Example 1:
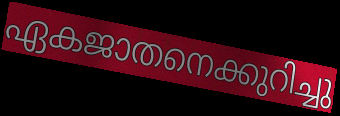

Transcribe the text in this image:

ഏകജാതനെക്കുറിച്ചു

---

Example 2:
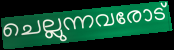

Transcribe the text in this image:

ചെല്ലുന്നവരോട്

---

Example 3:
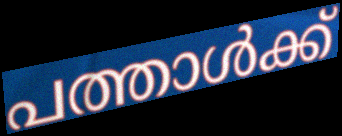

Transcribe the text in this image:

പത്താൾക്ക്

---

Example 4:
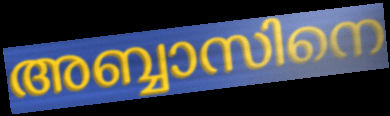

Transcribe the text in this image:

അബ്ബാസിനെ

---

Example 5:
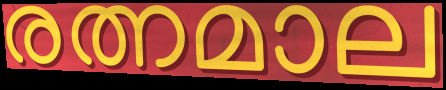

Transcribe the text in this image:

രത്നമാല